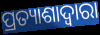
ପ୍ରତ୍ୟାଶାଦ୍ୱାରା